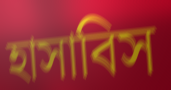
হাসাবিস